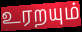
உரறயும்